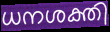
ധനശക്തി